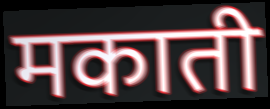
मकाती